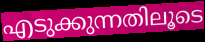
എടുക്കുന്നതിലൂടെ